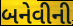
બનેવીની